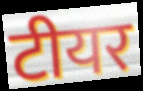
टीयर